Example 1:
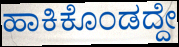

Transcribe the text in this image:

ಹಾಕಿಕೊಂಡದ್ದೇ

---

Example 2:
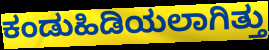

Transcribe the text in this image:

ಕಂಡುಹಿಡಿಯಲಾಗಿತ್ತು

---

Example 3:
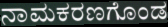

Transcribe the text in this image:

ನಾಮಕರಣಗೊಂಡ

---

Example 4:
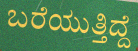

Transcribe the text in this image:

ಬರೆಯುತ್ತಿದ್ದೆ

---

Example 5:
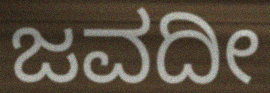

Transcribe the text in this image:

ಜವದೀ